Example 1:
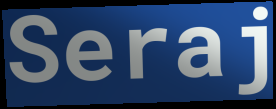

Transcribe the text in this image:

Seraj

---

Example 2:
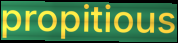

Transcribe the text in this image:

propitious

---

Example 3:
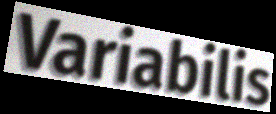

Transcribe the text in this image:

Variabilis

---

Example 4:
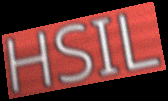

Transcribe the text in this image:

HSIL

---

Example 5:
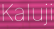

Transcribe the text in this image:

Kaluji